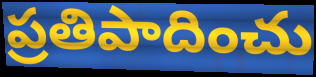
ప్రతిపాదించు